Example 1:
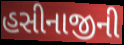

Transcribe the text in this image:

હસીનાજીની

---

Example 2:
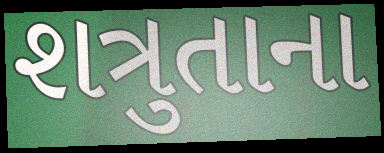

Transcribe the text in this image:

શત્રુતાના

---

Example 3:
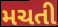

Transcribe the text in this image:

મચતી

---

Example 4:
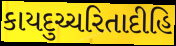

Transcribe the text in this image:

કાયદુચ્ચરિતાદીહિ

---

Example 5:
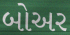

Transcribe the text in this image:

બોઅર